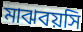
মাঝবয়সি